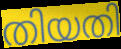
തിയതി